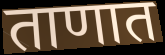
ताणात